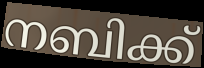
നബിക്ക്